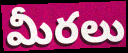
మీరలు